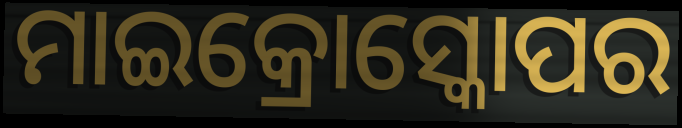
ମାଇକ୍ରୋସ୍କୋପର